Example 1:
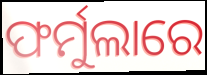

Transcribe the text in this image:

ଫର୍ମୁଲାରେ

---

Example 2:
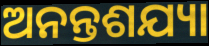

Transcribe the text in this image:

ଅନନ୍ତଶଯ୍ୟା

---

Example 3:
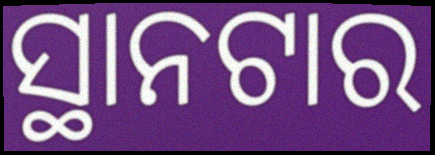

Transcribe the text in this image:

ସ୍ଥାନଟାର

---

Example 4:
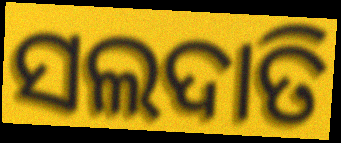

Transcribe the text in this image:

ସଲଦାତି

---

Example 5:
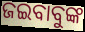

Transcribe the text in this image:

ଜଇବାବୁଙ୍କ